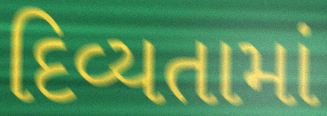
દિવ્યતામાં